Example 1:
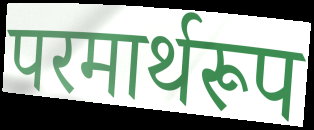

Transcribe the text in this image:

परमार्थरूप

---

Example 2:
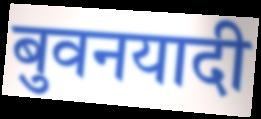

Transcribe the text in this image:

बुवनयादी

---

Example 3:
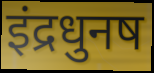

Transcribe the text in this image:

इंद्रधुनष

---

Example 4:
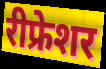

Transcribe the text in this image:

रीफ्रेशर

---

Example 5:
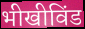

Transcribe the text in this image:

भीखीविंड